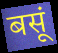
बसूं